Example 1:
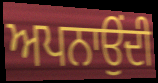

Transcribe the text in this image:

ਅਪਨਾਉਂਦੀ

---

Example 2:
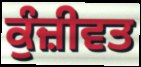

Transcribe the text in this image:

ਕੁੰਜ਼ੀਵਤ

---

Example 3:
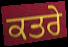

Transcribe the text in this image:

ਕਤਰੇ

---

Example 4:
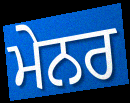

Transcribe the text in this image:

ਮੇਨਰ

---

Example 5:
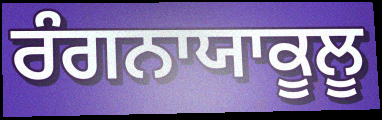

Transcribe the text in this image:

ਰੰਗਨਾਯਾਕੂਲੂ